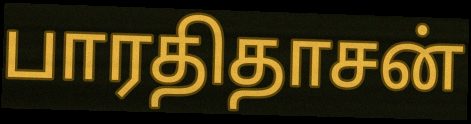
பாரதிதாசன்